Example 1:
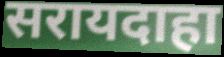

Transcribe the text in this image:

सरायदाहा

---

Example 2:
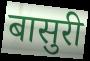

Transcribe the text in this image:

बासुरी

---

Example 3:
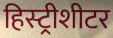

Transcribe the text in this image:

हिस्‍ट्रीशीटर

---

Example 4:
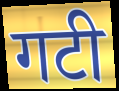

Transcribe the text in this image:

गटी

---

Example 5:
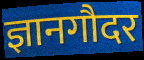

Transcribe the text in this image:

ज्ञानगौदर